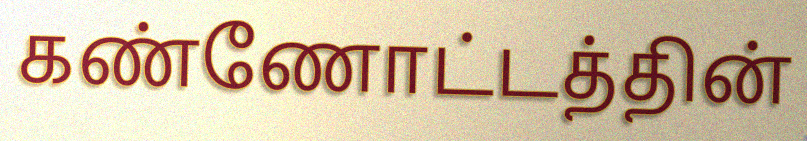
கண்ணோட்டத்தின்